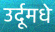
उर्दूमधे